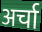
अर्चा